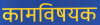
कामविषयक